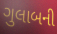
ગુલાબની